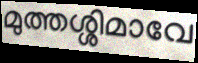
മുത്തശ്ശിമാവേ